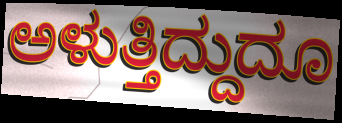
ಅಳುತ್ತಿದ್ದುದೂ